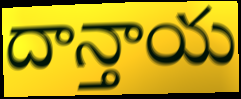
దాన్తాయ